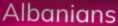
Albanians